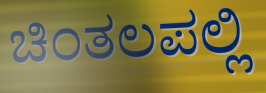
ಚಿಂತಲಪಲ್ಲಿ